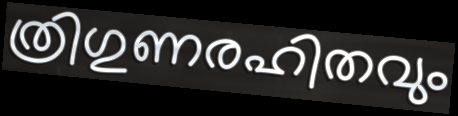
ത്രിഗുണരഹിതവും